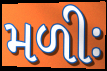
મળીઃ